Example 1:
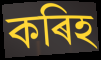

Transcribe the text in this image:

কৰিহ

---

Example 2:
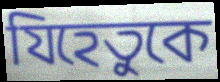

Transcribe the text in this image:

যিহেতুকে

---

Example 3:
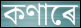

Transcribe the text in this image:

কণাৰে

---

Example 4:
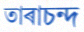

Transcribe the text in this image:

তাৰাচন্দ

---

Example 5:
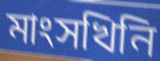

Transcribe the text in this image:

মাংসখিনি